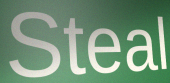
Steal